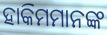
ହାକିମମାନଙ୍କ